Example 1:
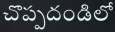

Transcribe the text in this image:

చొప్పదండిలో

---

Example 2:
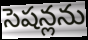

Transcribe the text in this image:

సెషన్లను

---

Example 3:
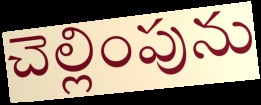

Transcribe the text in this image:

చెల్లింపును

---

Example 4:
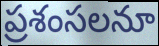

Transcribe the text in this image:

ప్రశంసలనూ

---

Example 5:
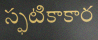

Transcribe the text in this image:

స్ఫటికాకార